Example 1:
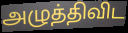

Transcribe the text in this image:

அழுத்திவிட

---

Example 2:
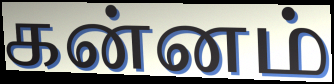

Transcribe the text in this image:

கன்னம்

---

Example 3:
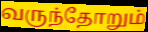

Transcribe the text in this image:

வருந்தோறும்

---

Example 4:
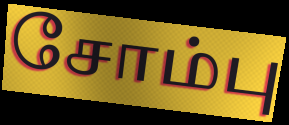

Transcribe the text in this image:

சோம்பு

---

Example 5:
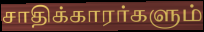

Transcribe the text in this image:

சாதிக்காரர்களும்